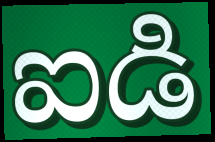
ఐడి